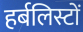
हर्बलिस्टों